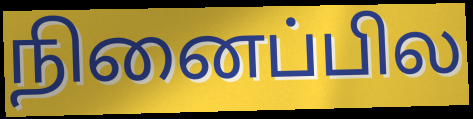
நினைப்பில